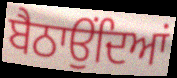
ਬੈਠਾਉਂਦਿਆਂ